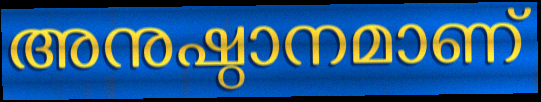
അനുഷ്ഠാനമാണ്